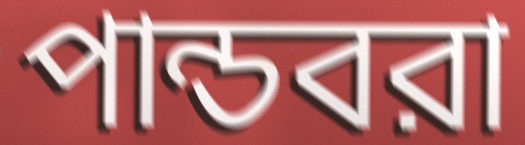
পান্ডবরা